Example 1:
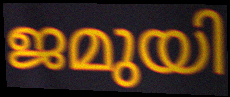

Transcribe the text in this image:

ജമുയി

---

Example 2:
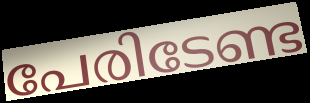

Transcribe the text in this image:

പേരിടേണ്ട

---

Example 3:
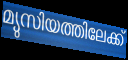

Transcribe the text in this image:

മ്യുസിയത്തിലേക്ക്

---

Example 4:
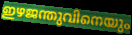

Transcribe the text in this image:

ഇഴജന്തുവിനെയും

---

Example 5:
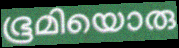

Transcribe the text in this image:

ഭൂമിയൊരു